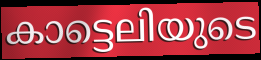
കാട്ടെലിയുടെ